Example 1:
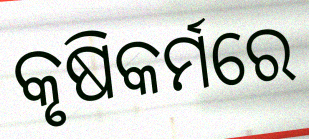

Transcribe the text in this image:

କୃଷିକର୍ମରେ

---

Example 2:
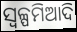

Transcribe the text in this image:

ସ୍ବଳ୍ପମିଆଦି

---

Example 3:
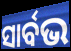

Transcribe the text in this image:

ସାର୍ବଭ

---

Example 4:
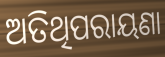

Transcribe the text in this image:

ଅତିଥିପରାୟଣା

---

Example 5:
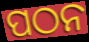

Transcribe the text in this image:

ପଠନ